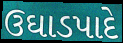
ઉઘાડપાદે